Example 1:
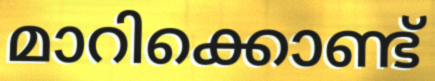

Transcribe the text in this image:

മാറിക്കൊണ്ട്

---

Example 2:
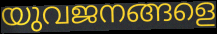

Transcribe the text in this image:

യുവജനങ്ങളെ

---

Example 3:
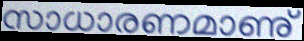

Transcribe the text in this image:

സാധാരണമാണു്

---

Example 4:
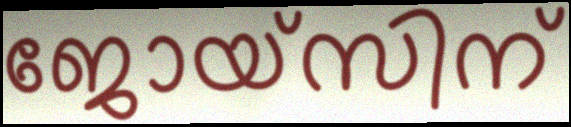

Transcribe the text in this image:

ജോയ്സിന്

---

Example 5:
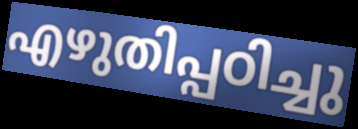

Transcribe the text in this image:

എഴുതിപ്പഠിച്ചു